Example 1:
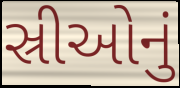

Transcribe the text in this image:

સ્રીઓનું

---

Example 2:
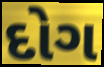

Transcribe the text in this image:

દોગ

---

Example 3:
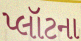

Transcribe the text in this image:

પ્લૉટના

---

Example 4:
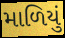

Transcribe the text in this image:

માળિયું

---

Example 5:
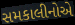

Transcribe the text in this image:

સમકાલીનોએ